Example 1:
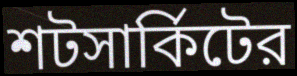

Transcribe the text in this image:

শটসার্কিটের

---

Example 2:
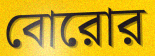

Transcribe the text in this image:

বোরোর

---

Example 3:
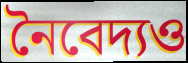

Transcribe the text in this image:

নৈবেদ্যও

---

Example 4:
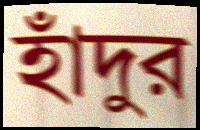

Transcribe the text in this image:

হাঁদুর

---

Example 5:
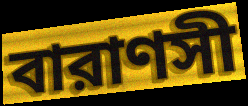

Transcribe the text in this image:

বারাণসী